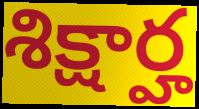
శిక్షార్హ